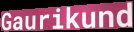
Gaurikund